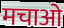
मचाओ